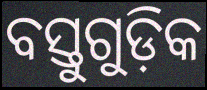
ବସ୍ତୁଗୁଡ଼ିକ